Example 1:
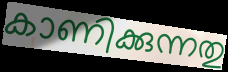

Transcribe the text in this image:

കാണിക്കുന്നതു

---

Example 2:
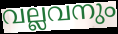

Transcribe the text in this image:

വല്ലവനും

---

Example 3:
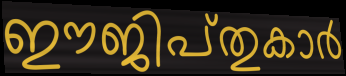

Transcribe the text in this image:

ഈജിപ്‌തുകാർ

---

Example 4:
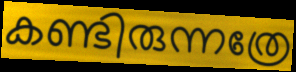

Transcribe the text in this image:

കണ്ടിരുന്നത്രേ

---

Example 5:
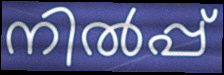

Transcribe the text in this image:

നിൽപ്പ്